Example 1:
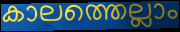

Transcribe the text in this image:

കാലത്തെല്ലാം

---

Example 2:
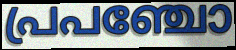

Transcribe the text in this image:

പ്രപഞ്ചോ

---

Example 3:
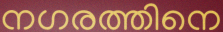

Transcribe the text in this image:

നഗരത്തിനെ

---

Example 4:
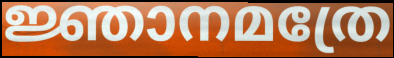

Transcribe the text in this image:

ജ്ഞാനമത്രേ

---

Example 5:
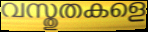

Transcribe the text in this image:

വസ്തുതകളെ